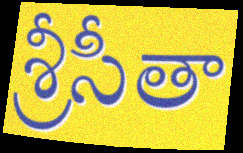
శ్రీసీతా